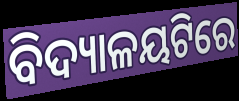
ବିଦ୍ୟାଳୟଟିରେ